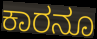
ಕಾರನೂ